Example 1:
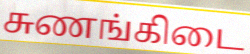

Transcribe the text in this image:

சுணங்கிடை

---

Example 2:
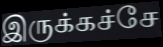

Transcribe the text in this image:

இருக்கச்சே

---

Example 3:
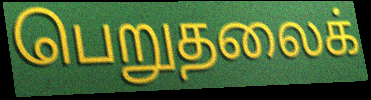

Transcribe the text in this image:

பெறுதலைக்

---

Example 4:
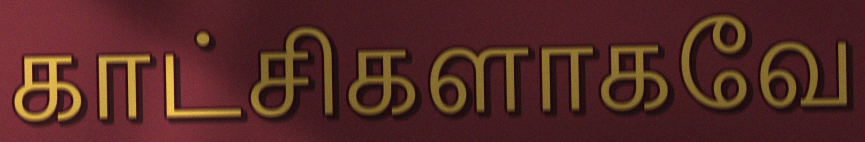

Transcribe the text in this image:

காட்சிகளாகவே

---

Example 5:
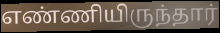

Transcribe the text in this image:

எண்ணியிருந்தார்